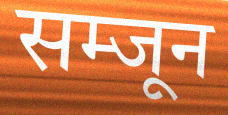
सम्जून